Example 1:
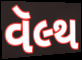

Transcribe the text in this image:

વૅલ્થ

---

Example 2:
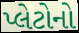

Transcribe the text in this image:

પ્લેટોનો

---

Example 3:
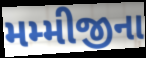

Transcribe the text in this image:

મમ્મીજીના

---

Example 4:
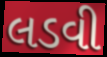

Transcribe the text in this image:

લડવી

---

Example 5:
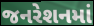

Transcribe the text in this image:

જનરેશનમાં